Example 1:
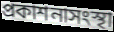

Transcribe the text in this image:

প্রকাশনাসংস্থা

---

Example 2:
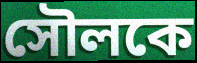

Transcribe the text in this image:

সৌলকে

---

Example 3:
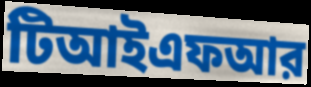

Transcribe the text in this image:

টিআইএফআর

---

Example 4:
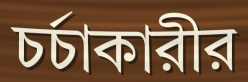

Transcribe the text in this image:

চর্চাকারীর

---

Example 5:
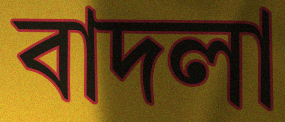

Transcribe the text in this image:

বাদলা